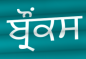
ਬ੍ਰੌਂਕਸ